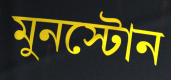
মুনস্টোন